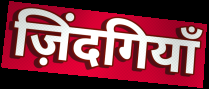
ज़िंदगियाँ